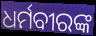
ଧର୍ମବୀରଙ୍କ